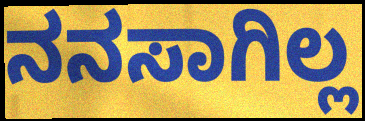
ನನಸಾಗಿಲ್ಲ